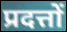
प्रदत्तों